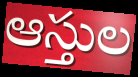
ఆస్తుల